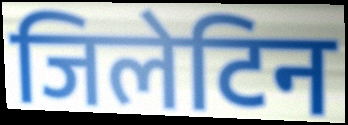
जिलेटिन